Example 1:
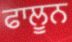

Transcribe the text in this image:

ਫਾਲੂਨ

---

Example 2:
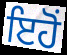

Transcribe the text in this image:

ਇਹੋਂ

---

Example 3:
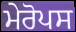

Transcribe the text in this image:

ਮੇਰੋਪਸ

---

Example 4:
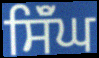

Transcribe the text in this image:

ਸਿੱੰਘ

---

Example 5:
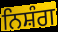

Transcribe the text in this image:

ਨਿਸ਼ੰਗ